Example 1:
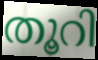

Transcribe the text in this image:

തൂറി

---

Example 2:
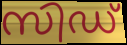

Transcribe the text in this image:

സിഡ്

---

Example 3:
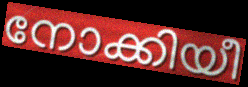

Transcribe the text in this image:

നോക്കിയീ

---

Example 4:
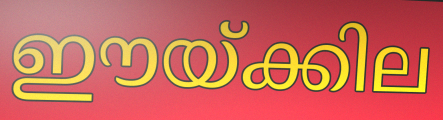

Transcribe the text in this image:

ഈയ്ക്കില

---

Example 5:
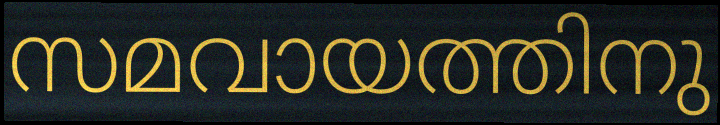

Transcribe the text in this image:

സമവായത്തിനു